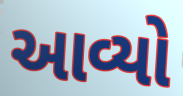
આવ્યો